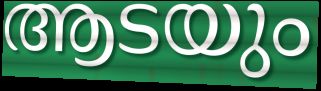
ആടയും